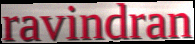
ravindran